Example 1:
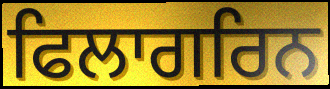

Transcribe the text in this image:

ਫਿਲਾਗਰਿਨ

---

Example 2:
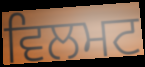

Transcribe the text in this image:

ਵਿਲਮਟ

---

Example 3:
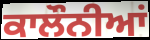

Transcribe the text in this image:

ਕਾਲੌਨੀਆਂ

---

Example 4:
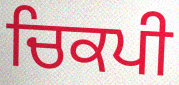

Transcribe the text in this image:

ਚਿਕਪੀ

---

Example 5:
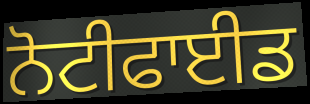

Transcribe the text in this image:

ਨੋਟੀਫਾਈਡ